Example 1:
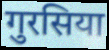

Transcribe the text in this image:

गुरसिया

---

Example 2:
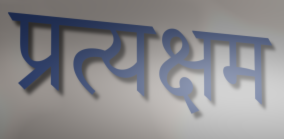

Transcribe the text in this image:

प्रत्यक्षम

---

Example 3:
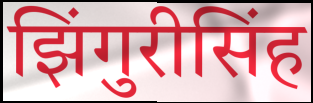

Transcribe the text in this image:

झिंगुरीसिंह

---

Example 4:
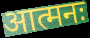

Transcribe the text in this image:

आत्मनः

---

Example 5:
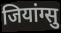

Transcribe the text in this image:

जियांग्सु